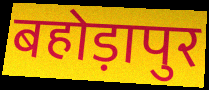
बहोड़ापुर